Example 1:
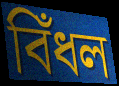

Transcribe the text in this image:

বিঁধল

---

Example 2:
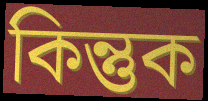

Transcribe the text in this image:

কিন্তুক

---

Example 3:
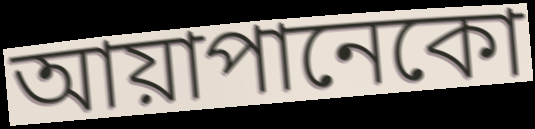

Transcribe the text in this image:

আয়াপানেকো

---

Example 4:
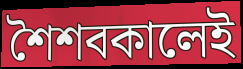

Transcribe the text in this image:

শৈশবকালেই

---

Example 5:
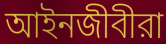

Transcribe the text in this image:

আইনজীবীরা